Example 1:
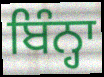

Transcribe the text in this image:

ਬਿੰਨ੍ਹਾ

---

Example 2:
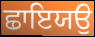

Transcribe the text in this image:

ਛਾਇਯਉ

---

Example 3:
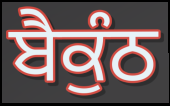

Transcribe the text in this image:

ਬੈਕੁੰਠ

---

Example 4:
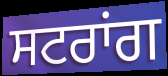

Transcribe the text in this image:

ਸਟਰਾਂਗ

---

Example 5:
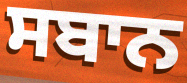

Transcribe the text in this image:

ਸਬਾਨ